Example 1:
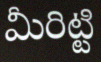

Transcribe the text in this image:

మీరిట్టి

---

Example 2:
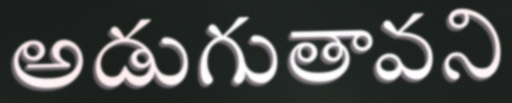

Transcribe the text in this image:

అడుగుతావని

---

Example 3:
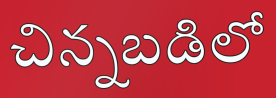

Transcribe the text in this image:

చిన్నబడిలో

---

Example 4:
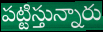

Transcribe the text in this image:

పట్టిస్తున్నారు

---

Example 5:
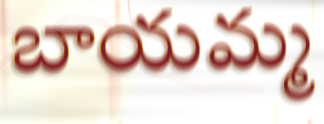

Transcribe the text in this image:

బాయమ్మ